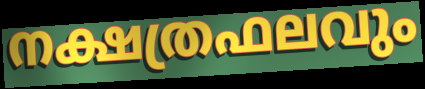
നക്ഷത്രഫലവും